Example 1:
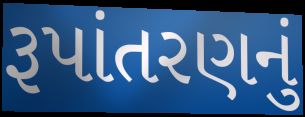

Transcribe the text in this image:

રૂપાંતરણનું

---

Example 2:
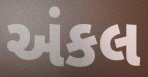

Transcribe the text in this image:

અંકલ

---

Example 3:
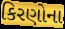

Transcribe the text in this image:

કિરણોના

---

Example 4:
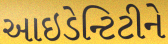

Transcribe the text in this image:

આઇડેન્ટિટીને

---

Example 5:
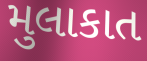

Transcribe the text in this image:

મુલાકાત